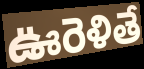
ఊరెళితే